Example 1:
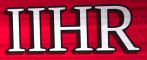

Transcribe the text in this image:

IIHR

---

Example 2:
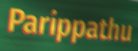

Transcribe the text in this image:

Parippathu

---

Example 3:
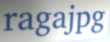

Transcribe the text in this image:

ragajpg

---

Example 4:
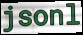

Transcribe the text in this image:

jsonl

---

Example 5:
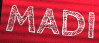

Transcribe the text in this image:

MADI